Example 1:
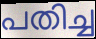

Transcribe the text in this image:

പതിച്ച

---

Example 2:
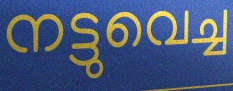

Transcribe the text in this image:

നട്ടുവെച്ച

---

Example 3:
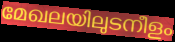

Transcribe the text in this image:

മേഖലയിലുടനീളം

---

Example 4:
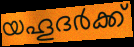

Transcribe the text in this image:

യഹൂദർക്ക്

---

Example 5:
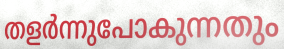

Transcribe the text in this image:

തളർന്നുപോകുന്നതും